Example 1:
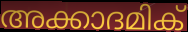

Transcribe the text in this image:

അക്കാദമിക്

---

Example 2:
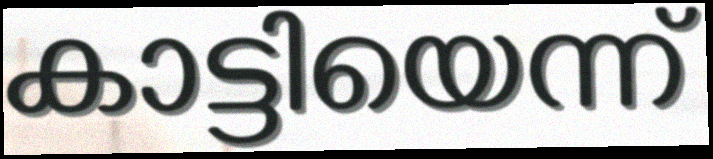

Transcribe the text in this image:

കാട്ടിയെന്ന്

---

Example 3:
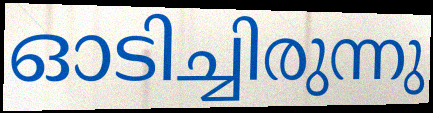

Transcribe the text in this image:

ഓടിച്ചിരുന്നു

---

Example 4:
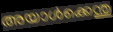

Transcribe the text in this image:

അയാൾക്കെന്തു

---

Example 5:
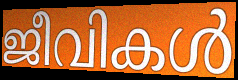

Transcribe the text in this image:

ജീവികൾ